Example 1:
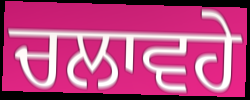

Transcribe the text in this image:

ਚਲਾਵਹੇ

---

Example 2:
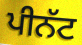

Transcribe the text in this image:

ਪੀਨੱਟ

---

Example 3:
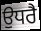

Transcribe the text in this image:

ਉਧਰੈ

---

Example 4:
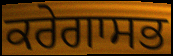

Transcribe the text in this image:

ਕਰੇਗਾਸਭ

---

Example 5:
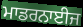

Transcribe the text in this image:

ਮਾਡਰਨਾਈਜ